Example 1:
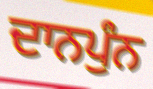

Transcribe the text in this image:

ਦਾਨਪੁੰਨ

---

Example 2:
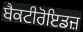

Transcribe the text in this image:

ਬੈਕਟੀਰੋਇਡਜ਼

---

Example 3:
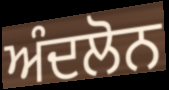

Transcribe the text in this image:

ਅੰਦਲੋਨ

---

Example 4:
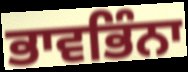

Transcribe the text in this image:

ਭਾਵਭਿੰਨਾ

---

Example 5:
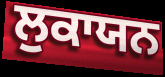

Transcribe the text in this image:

ਲੁਕਾਯਨ